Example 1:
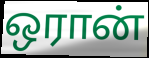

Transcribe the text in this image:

ஒரான்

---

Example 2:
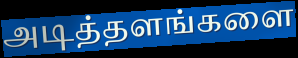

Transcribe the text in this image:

அடித்தளங்களை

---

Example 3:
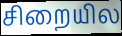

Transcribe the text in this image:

சிறையில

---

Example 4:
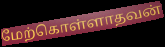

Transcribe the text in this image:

மேற்கொள்ளாதவன்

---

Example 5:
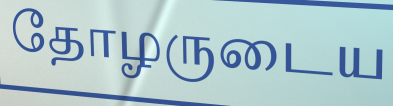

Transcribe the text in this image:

தோழருடைய